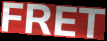
FRET